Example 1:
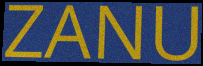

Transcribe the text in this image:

ZANU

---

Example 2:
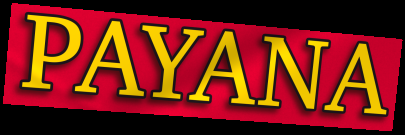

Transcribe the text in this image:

PAYANA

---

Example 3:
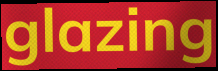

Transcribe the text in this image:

glazing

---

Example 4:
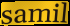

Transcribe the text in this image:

samil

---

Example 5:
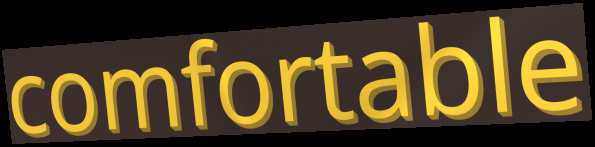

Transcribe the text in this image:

comfortable